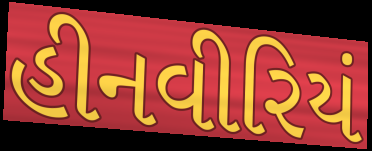
હીનવીરિયં